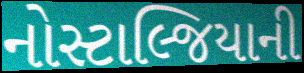
નોસ્ટાલ્જિયાની